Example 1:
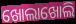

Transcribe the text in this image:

ଖୋଲାଖୋଲି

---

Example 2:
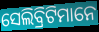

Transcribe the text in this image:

ସେଲିବ୍ରିଟିମାନେ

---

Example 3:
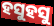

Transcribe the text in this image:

ହସୁହସୁ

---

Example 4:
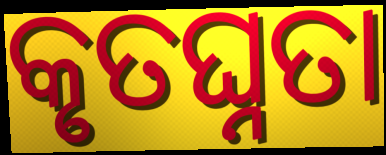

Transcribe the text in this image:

କୃତଘ୍ନତା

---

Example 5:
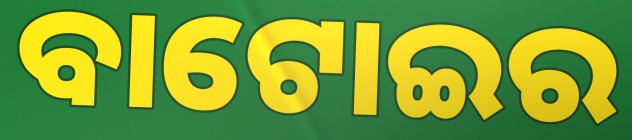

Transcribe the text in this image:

ବାଟୋଇର